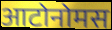
आटोनोमस